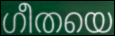
ഗീതയെ